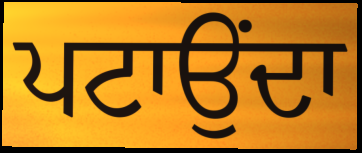
ਪਟਾਉਂਦਾ